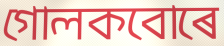
গোলকবোৰে